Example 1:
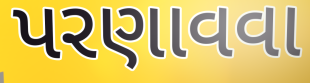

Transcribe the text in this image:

પરણાવવા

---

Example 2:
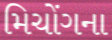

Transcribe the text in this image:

મિચોંગના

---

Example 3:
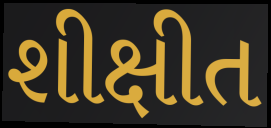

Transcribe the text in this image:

શીક્ષીત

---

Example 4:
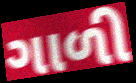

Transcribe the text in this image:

ગાળી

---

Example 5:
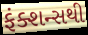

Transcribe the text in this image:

ફંક્શન્સથી